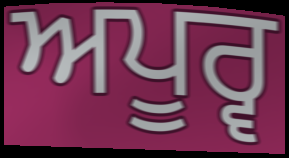
ਅਪੂਰ੍ਵ